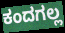
ಕಂದಗಲ್ಲ